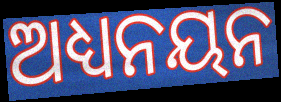
ଅଧ୍ୟନୟନ